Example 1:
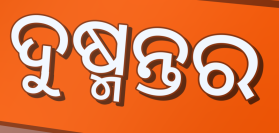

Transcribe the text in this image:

ଦୁଷ୍ମନ୍ତର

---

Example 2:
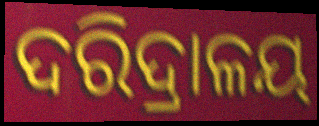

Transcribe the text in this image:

ଦରିଦ୍ରାଳୟ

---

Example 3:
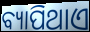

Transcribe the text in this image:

ବ୍ୟାପିଥାଏ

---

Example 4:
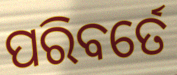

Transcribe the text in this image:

ପରିବର୍ତେ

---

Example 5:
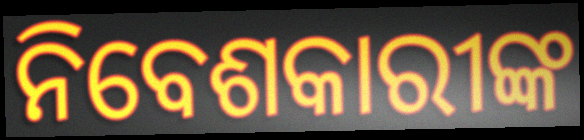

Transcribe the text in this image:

ନିବେଶକାରୀଙ୍କ